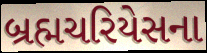
બ્રહ્મચરિયેસના